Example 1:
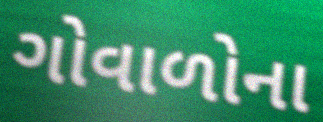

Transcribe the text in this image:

ગોવાળોના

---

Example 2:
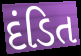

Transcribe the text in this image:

દંડિત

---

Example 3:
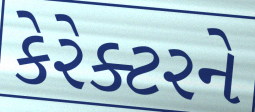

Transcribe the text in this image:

કેરેક્ટરને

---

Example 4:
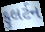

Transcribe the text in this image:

ફુલર્ટન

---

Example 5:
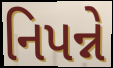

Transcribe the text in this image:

નિપન્ને